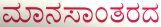
ಮಾನಸಾಂತರದ